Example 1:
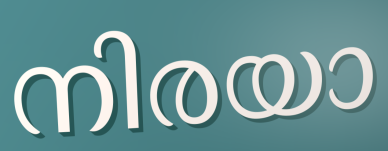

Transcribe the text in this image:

നിരയാ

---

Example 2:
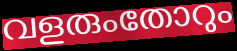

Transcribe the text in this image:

വളരുംതോറും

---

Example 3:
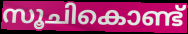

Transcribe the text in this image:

സൂചികൊണ്ട്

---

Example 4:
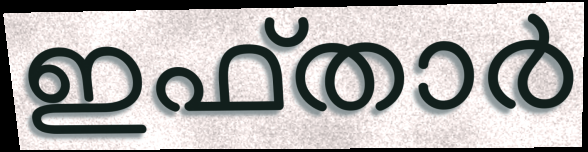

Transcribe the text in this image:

ഇഫ്താർ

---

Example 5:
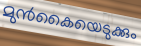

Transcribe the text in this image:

മുൻകൈയെടുക്കും